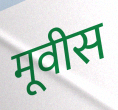
मूवीस